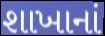
શાખાનાં